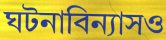
ঘটনাবিন্যাসও